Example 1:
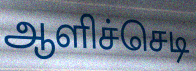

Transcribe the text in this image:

ஆளிச்செடி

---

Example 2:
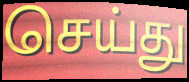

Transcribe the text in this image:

செய்து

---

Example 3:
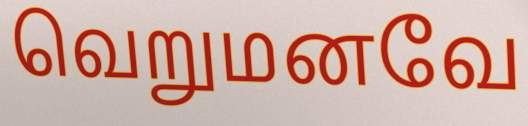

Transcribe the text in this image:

வெறுமனவே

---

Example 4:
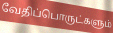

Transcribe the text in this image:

வேதிப்பொருட்களும்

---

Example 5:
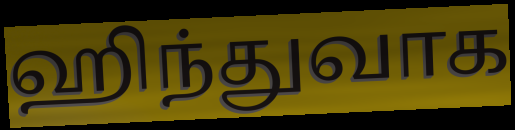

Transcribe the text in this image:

ஹிந்துவாக